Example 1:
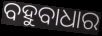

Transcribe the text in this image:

ବହୁବାଧାର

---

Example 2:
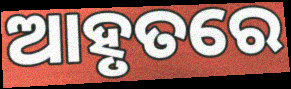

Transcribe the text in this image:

ଆହୃତରେ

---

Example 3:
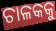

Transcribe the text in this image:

ଚାଳକକୁ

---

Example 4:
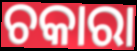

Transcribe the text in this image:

ଚକାରା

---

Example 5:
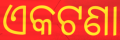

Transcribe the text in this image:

ଏକଟଣା